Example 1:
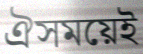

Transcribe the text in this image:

ঐসময়েই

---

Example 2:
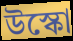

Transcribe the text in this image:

উস্কো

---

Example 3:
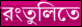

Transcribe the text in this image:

রংতুলিতে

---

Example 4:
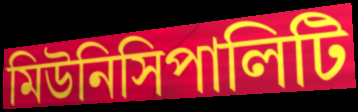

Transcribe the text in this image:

মিউনিসিপালিটি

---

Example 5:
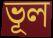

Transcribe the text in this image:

ভূল